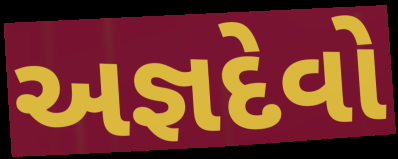
અજ્ઞદેવો